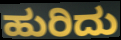
ಹುರಿದು